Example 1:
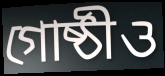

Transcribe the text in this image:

গোষ্ঠীও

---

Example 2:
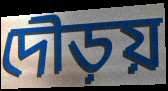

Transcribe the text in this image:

দৌড়য়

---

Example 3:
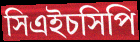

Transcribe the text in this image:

সিএইচসিপি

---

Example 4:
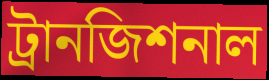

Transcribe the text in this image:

ট্রানজিশনাল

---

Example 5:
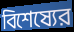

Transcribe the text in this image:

বিশেষ্যের